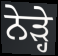
ਨੇੜ੍ਹੇ